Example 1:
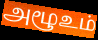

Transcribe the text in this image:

அழூஉம்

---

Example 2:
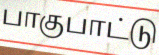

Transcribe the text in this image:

பாகுபாட்டு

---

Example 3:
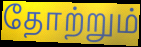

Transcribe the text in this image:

தோற்றும்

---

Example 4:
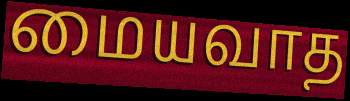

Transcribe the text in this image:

மையவாத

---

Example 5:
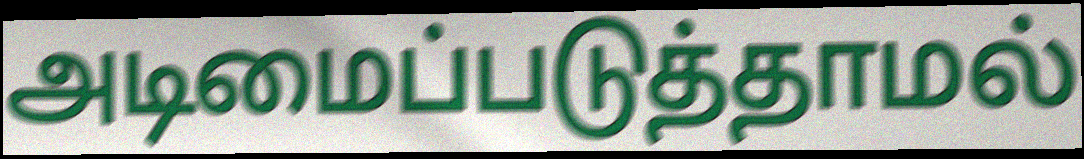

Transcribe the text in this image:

அடிமைப்படுத்தாமல்